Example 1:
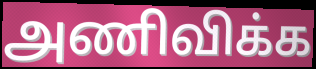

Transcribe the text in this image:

அணிவிக்க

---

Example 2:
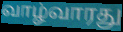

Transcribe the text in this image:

வாழ்வாரது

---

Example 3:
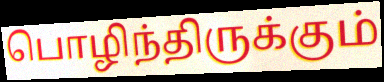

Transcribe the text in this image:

பொழிந்திருக்கும்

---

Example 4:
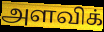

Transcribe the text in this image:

அளவிக்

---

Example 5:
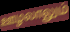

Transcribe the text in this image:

ஊழலாலும்